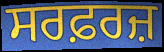
ਸਰਫ਼ਰਜ਼